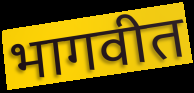
भागवीत